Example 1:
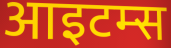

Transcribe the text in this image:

आइटम्स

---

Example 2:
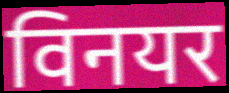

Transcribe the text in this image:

विनयर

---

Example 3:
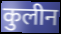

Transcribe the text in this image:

कुलीन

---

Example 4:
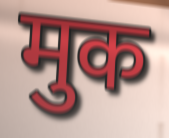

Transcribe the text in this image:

मुक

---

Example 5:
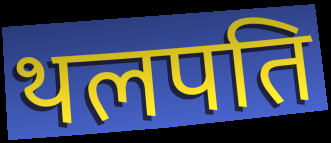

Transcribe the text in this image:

थलपति